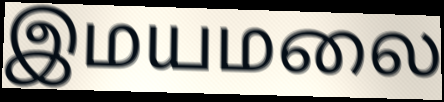
இமயமலை